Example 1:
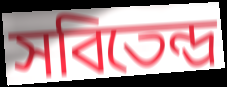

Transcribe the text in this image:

সবিতেন্দ্র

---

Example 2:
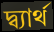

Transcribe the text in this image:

দ্ব্যার্থ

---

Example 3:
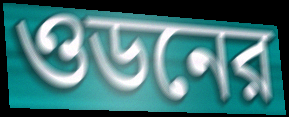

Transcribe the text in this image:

ওডনের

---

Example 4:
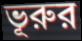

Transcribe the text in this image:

ভূরুর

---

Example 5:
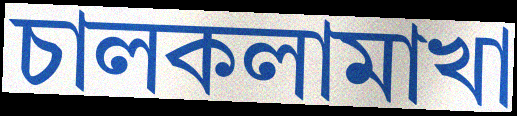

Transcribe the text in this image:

চালকলামাখা